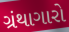
ગ્રંથાગારો